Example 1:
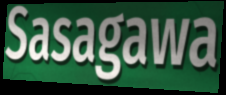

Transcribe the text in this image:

Sasagawa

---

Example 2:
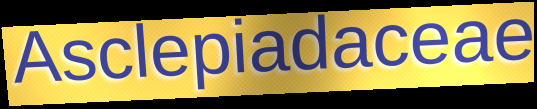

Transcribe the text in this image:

Asclepiadaceae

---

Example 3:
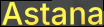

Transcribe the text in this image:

Astana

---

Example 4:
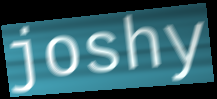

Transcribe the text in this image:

joshy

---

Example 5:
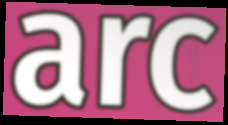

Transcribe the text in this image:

arc